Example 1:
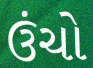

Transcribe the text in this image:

ઉંચો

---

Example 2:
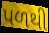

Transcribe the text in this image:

પળથી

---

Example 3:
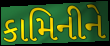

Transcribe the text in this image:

કામિનીને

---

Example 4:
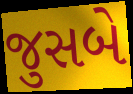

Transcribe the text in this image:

જુસબે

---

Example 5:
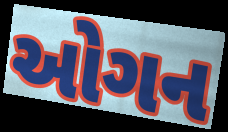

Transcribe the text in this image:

ઓગન